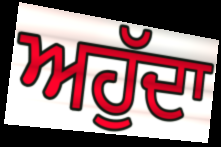
ਅਹੁੱਦਾ